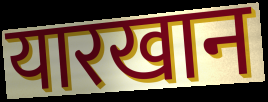
यारखान